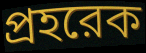
প্রহরেক